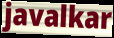
javalkar